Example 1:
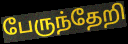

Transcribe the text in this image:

பேருந்தேறி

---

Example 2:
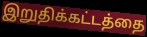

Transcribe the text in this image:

இறுதிக்கட்டத்தை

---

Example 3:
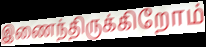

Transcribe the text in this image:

இணைந்திருக்கிறோம்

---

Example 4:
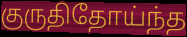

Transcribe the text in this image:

குருதிதோய்ந்த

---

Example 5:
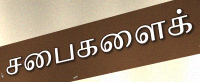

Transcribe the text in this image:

சபைகளைக்